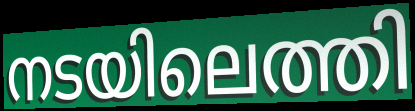
നടയിലെത്തി